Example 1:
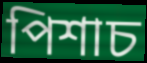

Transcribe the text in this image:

পিশাচ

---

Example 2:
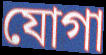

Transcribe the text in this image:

যোগা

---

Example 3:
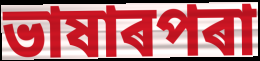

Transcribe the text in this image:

ভাষাৰপৰা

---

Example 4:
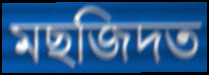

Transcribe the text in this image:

মছজিদত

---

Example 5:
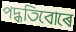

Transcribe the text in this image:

পদ্ধতিবোৰে